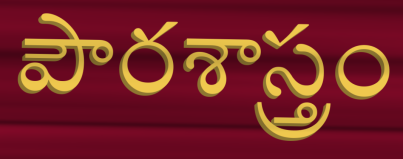
పౌరశాస్త్రం